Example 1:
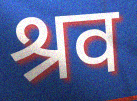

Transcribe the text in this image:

श्रव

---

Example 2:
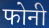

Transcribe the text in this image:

फोनी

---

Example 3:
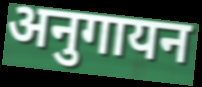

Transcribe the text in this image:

अनुगायन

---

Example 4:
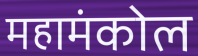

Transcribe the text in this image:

महामंकोल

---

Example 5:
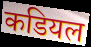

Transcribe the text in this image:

कडियल